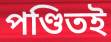
পণ্ডিতই